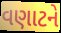
વણાટને